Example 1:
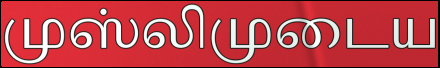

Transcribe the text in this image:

முஸ்லிமுடைய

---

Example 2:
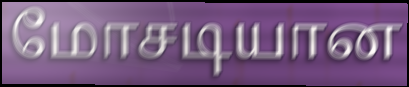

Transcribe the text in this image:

மோசடியான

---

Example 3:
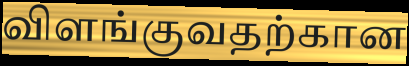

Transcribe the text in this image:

விளங்குவதற்கான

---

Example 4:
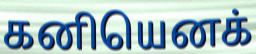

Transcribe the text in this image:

கனியெனக்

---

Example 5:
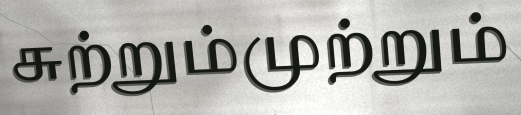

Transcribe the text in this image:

சுற்றும்முற்றும்